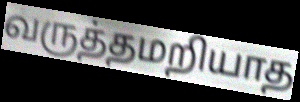
வருத்தமறியாத